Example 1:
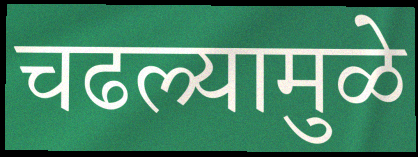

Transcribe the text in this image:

चढल्यामुळे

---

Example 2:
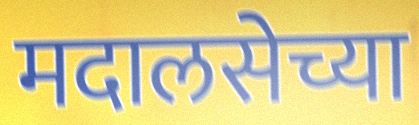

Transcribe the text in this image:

मदालसेच्या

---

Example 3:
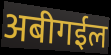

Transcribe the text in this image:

अबीगईल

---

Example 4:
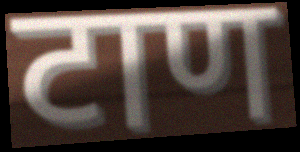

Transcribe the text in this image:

टाण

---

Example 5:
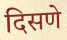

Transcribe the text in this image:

दिसणे